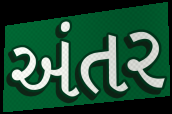
અંતર